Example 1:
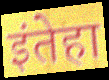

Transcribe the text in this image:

इंतेहा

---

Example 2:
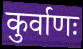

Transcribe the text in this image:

कुर्वाणः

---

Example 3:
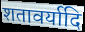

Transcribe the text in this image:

शतावर्यादि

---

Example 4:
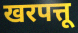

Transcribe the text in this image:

खरपत्तू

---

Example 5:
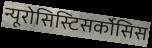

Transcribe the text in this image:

न्यूरोसिस्टिसर्कोसिस